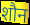
शौन